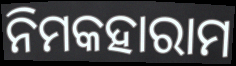
ନିମକହାରାମ